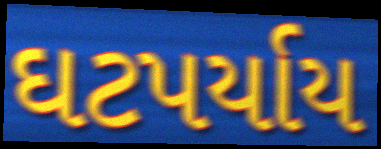
ઘટપર્યાય